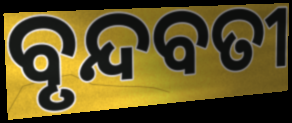
ବୃନ୍ଦବତୀ